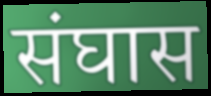
संघास